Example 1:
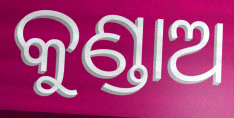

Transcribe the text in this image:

କୁଣ୍ଡାଅ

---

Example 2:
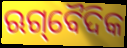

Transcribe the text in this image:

ଋଗ୍‌ବୈଦିକ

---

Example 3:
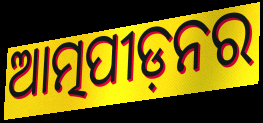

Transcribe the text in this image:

ଆତ୍ମପୀଡ଼ନର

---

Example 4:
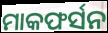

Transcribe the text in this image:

ମାକଫର୍ସନ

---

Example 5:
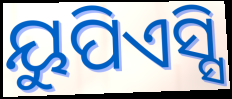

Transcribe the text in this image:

ୟୁପିଏସ୍ସି